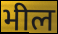
भील